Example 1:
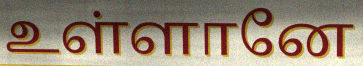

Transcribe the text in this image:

உள்ளானே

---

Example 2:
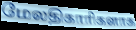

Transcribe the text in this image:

மேலதிகாரிகளாக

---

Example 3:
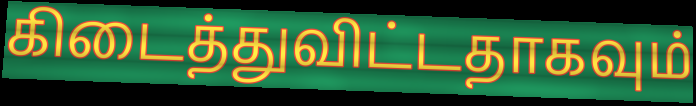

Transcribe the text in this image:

கிடைத்துவிட்டதாகவும்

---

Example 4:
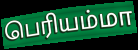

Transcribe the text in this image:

பெரியம்மா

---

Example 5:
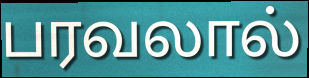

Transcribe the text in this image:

பரவலால்